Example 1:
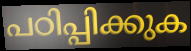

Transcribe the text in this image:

പഠിപ്പിക്കുക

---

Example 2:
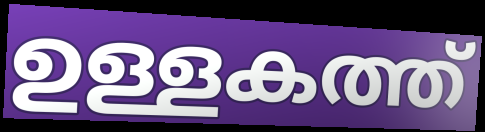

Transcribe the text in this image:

ഉള്ളകത്ത്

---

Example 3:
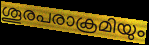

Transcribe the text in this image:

ശൂരപരാക്രമിയും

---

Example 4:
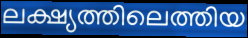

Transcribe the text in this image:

ലക്ഷ്യത്തിലെത്തിയ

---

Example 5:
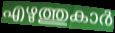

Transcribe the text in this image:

എഴുത്തുകാർ